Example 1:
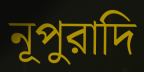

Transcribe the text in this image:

নূপুরাদি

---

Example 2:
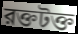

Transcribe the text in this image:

রক্তটক্ত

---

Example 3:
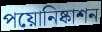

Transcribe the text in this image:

পয়োনিষ্কাশন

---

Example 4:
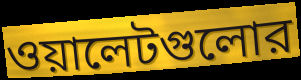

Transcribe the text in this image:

ওয়ালেটগুলোর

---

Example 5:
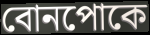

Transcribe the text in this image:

বোনপোকে